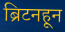
ब्रिटनहून